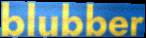
blubber